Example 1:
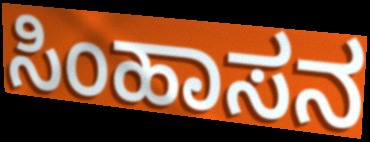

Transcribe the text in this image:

ಸಿಂಹಾಸನ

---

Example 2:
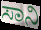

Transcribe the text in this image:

ಸಾನಿ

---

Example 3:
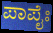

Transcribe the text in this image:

ಪಾಪೈಃ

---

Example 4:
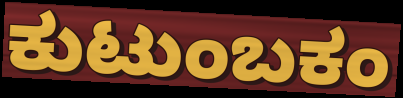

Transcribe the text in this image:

ಕುಟುಂಬಕಂ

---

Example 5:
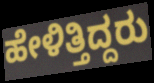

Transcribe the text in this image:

ಹೇಳಿತ್ತಿದ್ದರು